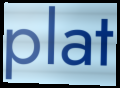
plat